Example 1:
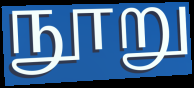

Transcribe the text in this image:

நூறு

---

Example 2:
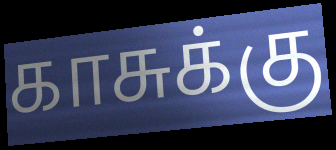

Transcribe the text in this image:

காசுக்கு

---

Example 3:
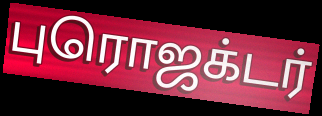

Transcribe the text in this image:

புரொஜக்டர்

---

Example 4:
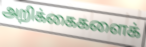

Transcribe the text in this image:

அறிக்கைகளைக்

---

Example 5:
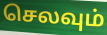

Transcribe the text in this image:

செலவும்